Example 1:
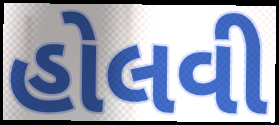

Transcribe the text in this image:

હોલવી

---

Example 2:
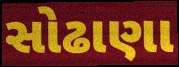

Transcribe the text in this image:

સોઢાણા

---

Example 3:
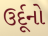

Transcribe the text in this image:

ઉર્દૂનો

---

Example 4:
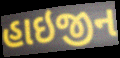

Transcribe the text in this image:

હાઇજીન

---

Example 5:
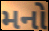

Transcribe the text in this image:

મનો